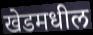
खेडमधील